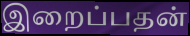
இறைப்பதன்